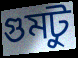
গুমটু